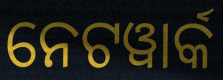
ନେଟୱାର୍କ